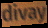
divay